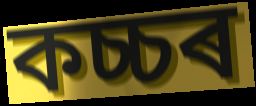
কচ্চৰ